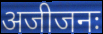
अजीजनः